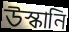
উস্কানি